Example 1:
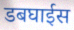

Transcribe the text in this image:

डबघाईस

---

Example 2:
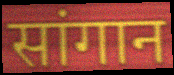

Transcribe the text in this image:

सांगान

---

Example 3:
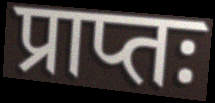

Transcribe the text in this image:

प्राप्तः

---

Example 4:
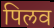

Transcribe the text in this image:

पिलव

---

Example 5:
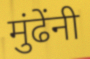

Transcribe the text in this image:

मुंढेंनी